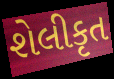
શેલીકૃત